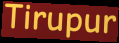
Tirupur